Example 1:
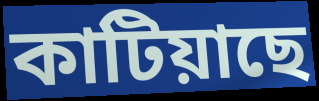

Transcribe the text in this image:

কাটিয়াছে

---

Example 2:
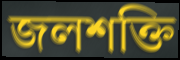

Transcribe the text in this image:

জলশক্তি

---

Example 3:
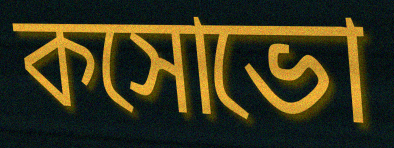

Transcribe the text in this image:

কসোভো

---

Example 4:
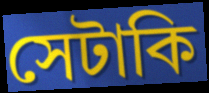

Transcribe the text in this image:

সেটাকি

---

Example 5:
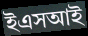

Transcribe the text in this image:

ইএসআই